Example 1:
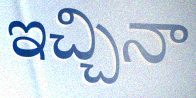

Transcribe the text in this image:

ఇచ్చినా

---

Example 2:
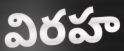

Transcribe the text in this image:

విరహ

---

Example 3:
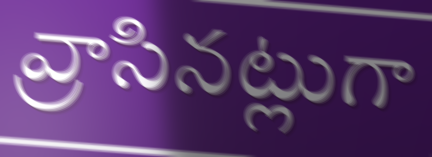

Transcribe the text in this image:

వ్రాసినట్లుగా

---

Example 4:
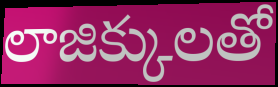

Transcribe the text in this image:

లాజిక్కులతో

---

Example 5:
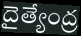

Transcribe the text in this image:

దైత్యేంద్ర